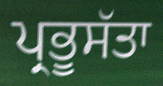
ਪ੍ਰਭੂਸੱਤਾ